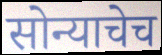
सोन्याचेच